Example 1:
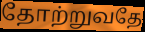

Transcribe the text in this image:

தோற்றுவதே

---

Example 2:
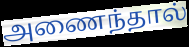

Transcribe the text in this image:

அணைந்தால்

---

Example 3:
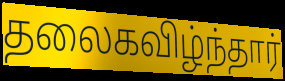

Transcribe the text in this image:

தலைகவிழ்ந்தார்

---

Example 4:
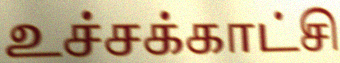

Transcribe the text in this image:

உச்சக்காட்சி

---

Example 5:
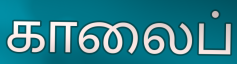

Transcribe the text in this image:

காலைப்